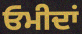
ਓਮੀਦਾਂ